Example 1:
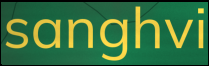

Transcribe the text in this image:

sanghvi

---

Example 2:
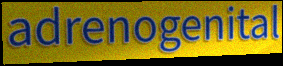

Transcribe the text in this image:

adrenogenital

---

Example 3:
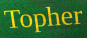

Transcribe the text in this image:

Topher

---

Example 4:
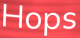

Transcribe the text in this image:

Hops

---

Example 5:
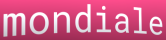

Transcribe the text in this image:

mondiale